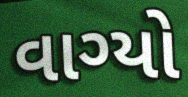
વાગ્યો